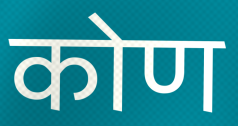
कोण